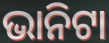
ଭାନିଟା